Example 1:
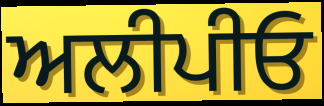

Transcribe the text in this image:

ਅਲੀਪੀਓ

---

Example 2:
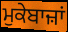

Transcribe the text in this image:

ਮੁਕੇਬਾਜ਼ਾਂ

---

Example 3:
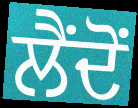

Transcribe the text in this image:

ਲੈਂਦੋਂ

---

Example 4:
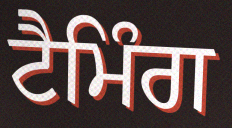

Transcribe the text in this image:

ਟੈਮਿੰਗ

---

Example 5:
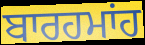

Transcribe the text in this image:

ਬਾਰਹਮਾਂਹ